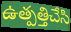
ఉత్పత్తిచేసి